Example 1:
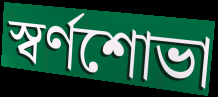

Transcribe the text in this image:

স্বর্ণশোভা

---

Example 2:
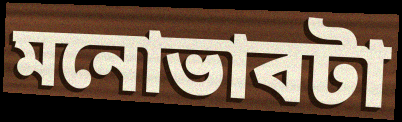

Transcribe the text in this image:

মনোভাবটা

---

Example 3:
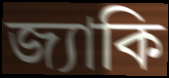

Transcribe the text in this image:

জ্যাকি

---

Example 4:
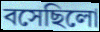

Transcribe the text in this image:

বসেছিলো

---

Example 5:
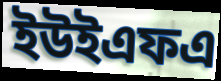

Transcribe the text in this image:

ইউইএফএ